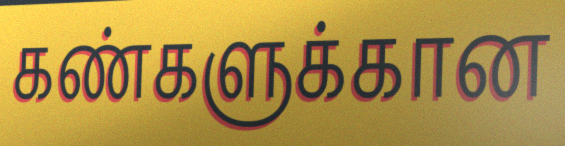
கண்களுக்கான